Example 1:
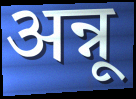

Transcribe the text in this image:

अन्नू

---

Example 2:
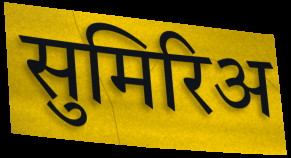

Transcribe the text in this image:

सुमिरिअ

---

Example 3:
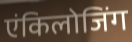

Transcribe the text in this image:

एंकिलोजिंग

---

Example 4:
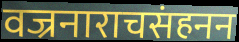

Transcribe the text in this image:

वज्रनाराचसंहनन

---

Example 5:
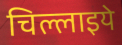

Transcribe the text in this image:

चिल्लाइये